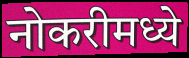
नोकरीमध्ये